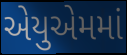
એયુએમમાં